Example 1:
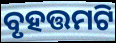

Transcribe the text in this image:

ବୃହତ୍ତମଟି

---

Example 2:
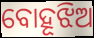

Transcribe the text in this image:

ବୋହୂଝିଅ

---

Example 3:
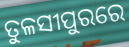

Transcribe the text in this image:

ତୁଳସୀପୁରରେ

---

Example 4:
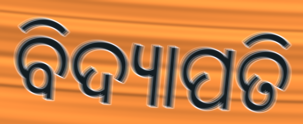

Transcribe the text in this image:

ବିଦ୍ୟାପତି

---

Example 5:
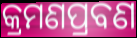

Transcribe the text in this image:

କ୍ରମଣପ୍ରବଣ